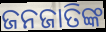
ଜନଜାତିଙ୍କ